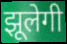
झूलेगी